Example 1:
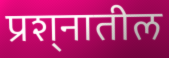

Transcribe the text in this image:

प्रश्नातील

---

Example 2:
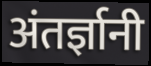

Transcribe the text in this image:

अंतर्ज्ञानी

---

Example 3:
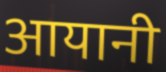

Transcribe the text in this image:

आयानी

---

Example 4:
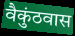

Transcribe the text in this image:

वैकुंठवास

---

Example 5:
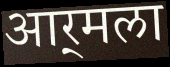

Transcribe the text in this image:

आर्मला